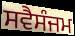
ਸਵੈਸੰਜਮ